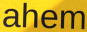
ahem